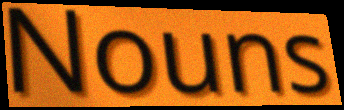
Nouns